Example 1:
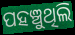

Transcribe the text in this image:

ପହଞ୍ଚୁଥିଲି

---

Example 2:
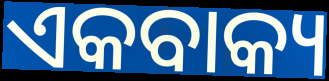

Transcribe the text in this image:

ଏକବାକ୍ୟ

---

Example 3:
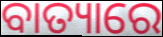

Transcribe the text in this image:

ବାତ୍ୟାରେ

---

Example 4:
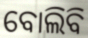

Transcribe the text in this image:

ବୋଲିବି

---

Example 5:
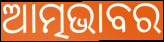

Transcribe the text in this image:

ଆତ୍ମଭାବର